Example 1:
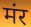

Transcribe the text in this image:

मंर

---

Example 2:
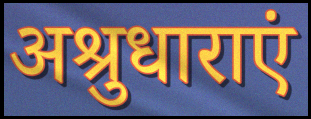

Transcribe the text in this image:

अश्रुधाराएं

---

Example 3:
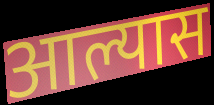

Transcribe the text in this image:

आल्यास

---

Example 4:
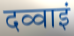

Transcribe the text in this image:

दव्वाइं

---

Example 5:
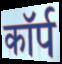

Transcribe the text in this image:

कॉर्प